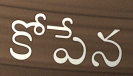
కోపేన